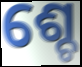
ଶ୍ଚେ